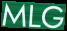
MLG